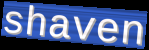
shaven